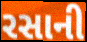
રસાની